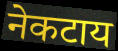
नेकटाय